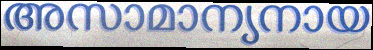
അസാമാന്യനായ